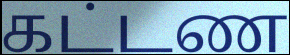
கட்டண